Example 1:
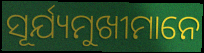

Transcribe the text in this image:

ସୂର୍ଯ୍ୟମୁଖୀମାନେ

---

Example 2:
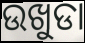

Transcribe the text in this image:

ଉଖୁଡା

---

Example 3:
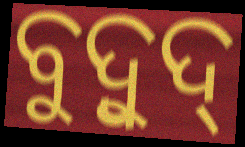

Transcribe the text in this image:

ବୁଦ୍ବୁଦ୍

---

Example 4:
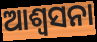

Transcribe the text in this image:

ଆଶ୍ୱସନା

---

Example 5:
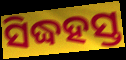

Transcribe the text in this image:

ସିଦ୍ଧହସ୍ତ